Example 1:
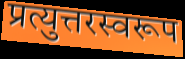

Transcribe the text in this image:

प्रत्युत्तरस्वरूप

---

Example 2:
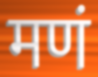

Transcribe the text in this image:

मणं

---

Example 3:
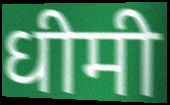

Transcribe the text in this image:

धीमी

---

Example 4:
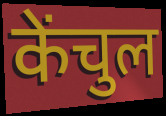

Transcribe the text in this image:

केंचुल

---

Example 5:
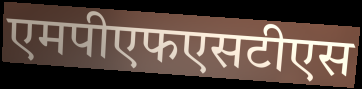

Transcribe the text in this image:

एमपीएफएसटीएस